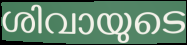
ശിവായുടെ